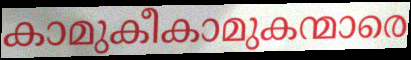
കാമുകീകാമുകന്മാരെ